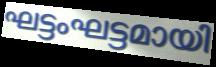
ഘട്ടംഘട്ടമായി